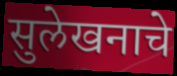
सुलेखनाचे